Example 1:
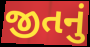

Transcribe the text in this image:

જીતનું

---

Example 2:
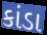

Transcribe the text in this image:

કાંડા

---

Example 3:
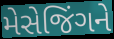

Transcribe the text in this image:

મેસેજિંગને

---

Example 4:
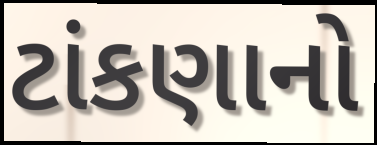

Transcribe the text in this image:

ટાંકણાનો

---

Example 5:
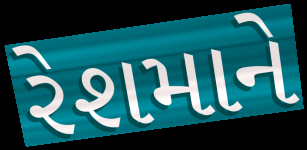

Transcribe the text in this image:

રેશમાને